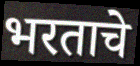
भरताचे